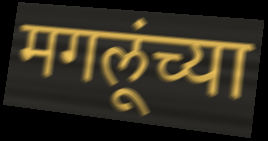
मगलूंच्या